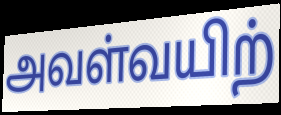
அவள்வயிற்